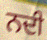
ਨਦੀ